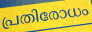
പ്രതിരോധം